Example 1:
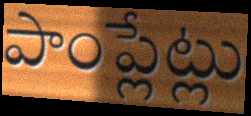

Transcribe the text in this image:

పాంప్లేట్లు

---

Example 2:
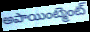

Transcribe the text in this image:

అపాయింట్మెంట్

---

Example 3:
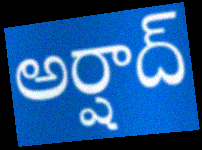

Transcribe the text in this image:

అర్షాద్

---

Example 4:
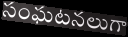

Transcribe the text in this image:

సంఘటనలుగా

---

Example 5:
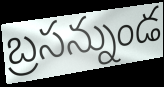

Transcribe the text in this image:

బ్రసన్నుండ